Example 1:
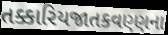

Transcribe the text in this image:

તક્કારિયજાતકવણ્ણના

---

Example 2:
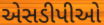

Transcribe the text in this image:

એસડીપીઓ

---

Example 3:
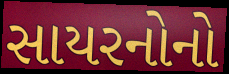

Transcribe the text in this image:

સાયરનોનો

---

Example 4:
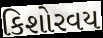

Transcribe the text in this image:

કિશોરવય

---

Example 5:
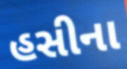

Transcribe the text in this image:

હસીના